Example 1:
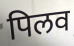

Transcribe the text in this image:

पिलव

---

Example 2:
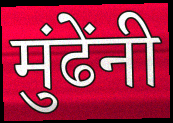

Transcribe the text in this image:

मुंढेंनी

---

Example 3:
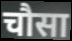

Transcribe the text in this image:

चौसा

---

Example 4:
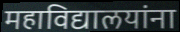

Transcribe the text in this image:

महाविद्यालयांना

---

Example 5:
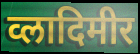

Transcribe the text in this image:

व्लादिमीर